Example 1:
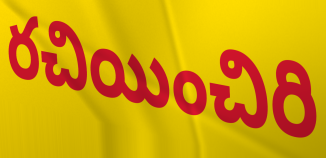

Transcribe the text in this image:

రచియించిరి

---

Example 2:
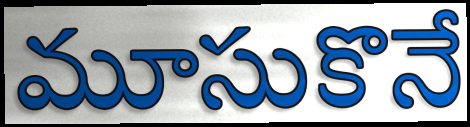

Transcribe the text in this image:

మూసుకొనే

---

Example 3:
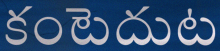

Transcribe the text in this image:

కంటెదుట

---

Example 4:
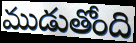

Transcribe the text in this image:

ముడుతోంది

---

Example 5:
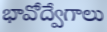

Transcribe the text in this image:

భావోద్వేగాలు